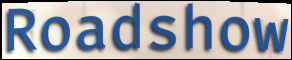
Roadshow